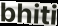
bhiti